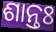
ଶାନ୍ତଃ